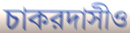
চাকরদাসীও